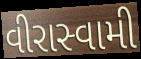
વીરાસ્વામી